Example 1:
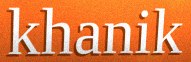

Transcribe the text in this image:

khanik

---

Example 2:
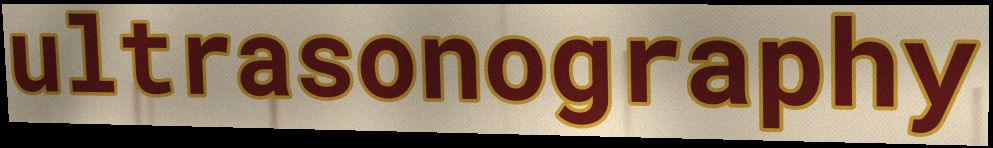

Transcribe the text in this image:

ultrasonography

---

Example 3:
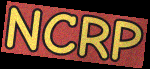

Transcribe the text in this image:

NCRP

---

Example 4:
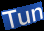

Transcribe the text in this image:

Tun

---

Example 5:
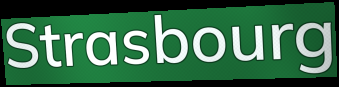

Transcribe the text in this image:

Strasbourg